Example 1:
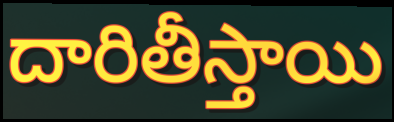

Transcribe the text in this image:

దారితీస్తాయి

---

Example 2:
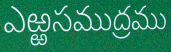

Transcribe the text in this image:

ఎఱ్ఱసముద్రము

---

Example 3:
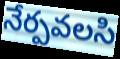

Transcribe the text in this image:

నేర్పవలసి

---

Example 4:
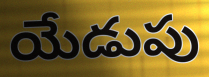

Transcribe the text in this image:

యేడుపు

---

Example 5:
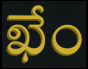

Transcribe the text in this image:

ఖేం